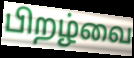
பிறழ்வை